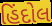
હિંદોલ